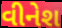
વીનેશ